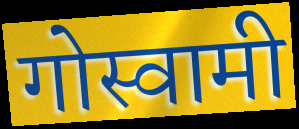
गोस्वामी